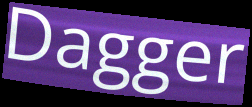
Dagger